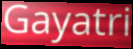
Gayatri